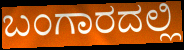
ಬಂಗಾರದಲ್ಲಿ